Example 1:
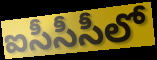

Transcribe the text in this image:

ఐసీసీసీలో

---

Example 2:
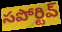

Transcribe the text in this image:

సపోర్టివ్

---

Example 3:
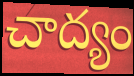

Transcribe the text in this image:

చాద్యం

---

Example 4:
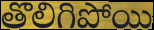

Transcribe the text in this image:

తొలిగిపోయి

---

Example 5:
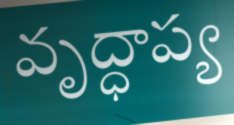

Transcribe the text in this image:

వృద్ధాప్య